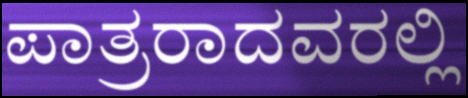
ಪಾತ್ರರಾದವರಲ್ಲಿ